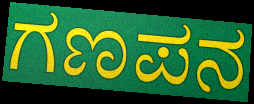
ಗಣಪನ